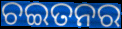
ଚଇତନର